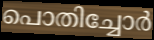
പൊതിച്ചോർ